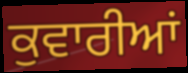
ਕੁਵਾਰੀਆਂ